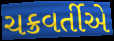
ચક્રવર્તીએ